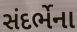
સંદર્ભેના